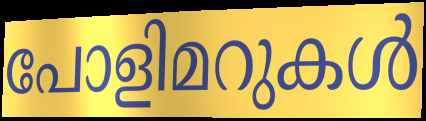
പോളിമറുകൾ